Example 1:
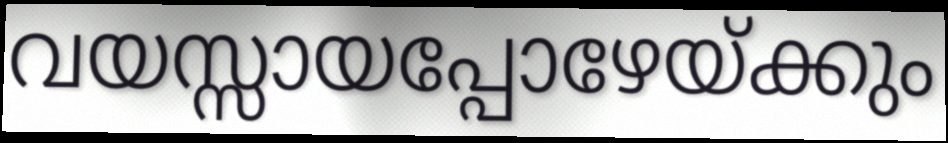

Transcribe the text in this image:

വയസ്സായപ്പോഴേയ്ക്കും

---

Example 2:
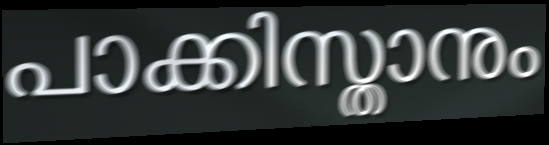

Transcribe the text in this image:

പാക്കിസ്താനും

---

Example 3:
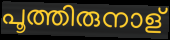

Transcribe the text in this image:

പൂത്തിരുനാള്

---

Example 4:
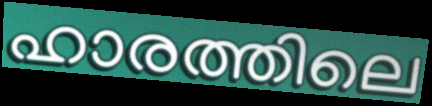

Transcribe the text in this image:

ഹാരത്തിലെ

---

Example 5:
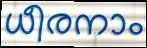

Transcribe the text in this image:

ധീരനാം